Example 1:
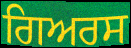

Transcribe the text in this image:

ਗਿਅਰਸ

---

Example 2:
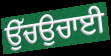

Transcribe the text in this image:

ਉੱਚਉਚਾਈ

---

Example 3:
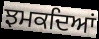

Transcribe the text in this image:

ਝਮਕਦਿਆਂ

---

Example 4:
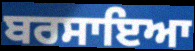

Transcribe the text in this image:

ਬਰਸਾਇਆ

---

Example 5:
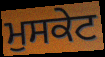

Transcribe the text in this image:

ਮੁਸਕੇਟ